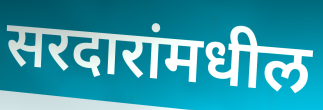
सरदारांमधील